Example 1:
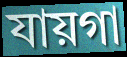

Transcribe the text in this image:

যায়গা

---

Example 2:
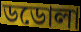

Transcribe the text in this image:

ডডোলা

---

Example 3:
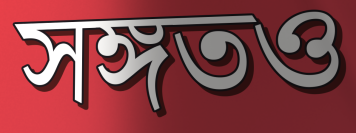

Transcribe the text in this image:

সঙ্গতও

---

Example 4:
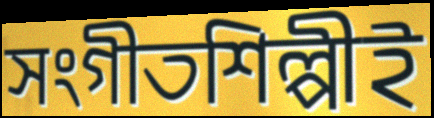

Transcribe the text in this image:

সংগীতশিল্পীই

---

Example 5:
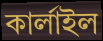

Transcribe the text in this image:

কার্লাইল